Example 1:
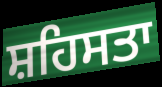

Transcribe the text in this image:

ਸ਼ਹਿਸਤਾ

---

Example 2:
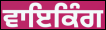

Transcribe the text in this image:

ਵਾਇਕਿੰਗ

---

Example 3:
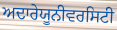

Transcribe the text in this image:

ਅਦਾਰੇਯੂਨੀਵਰਸਿਟੀ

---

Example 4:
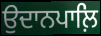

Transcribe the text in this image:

ਉਦਾਨਪਾਲ਼ਿ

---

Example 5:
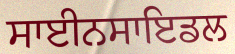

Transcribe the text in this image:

ਸਾਈਨਸਾਇਡਲ